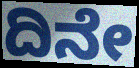
ದಿನೇ